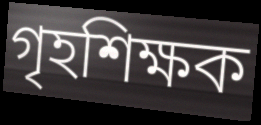
গৃহশিক্ষক